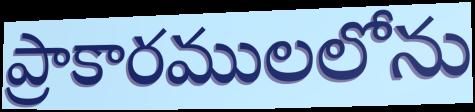
ప్రాకారములలోను